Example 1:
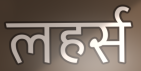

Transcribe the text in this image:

लहर्स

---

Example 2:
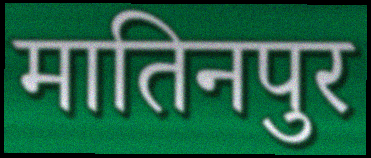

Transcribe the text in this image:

मातिनपुर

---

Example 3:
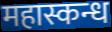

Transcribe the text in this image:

महास्कन्ध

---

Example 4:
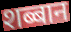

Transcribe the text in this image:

शब्बान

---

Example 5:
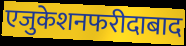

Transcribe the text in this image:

एजुकेशनफरीदाबाद